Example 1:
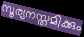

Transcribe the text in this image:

സൂര്യനസ്തമിക്കും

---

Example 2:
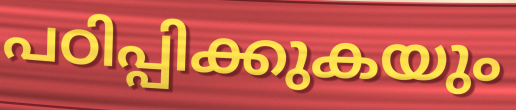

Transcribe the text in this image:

പഠിപ്പിക്കുകയും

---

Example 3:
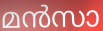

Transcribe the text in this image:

മൻസാ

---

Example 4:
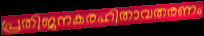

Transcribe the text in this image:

പ്രതിജനകരഹിതാവതരണം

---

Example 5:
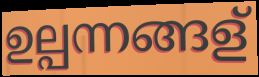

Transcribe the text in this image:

ഉല്പന്നങ്ങള്